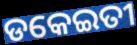
ଡକେଇତୀ